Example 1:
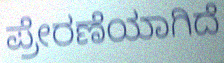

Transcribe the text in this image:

ಪ್ರೇರಣೆಯಾಗಿದೆ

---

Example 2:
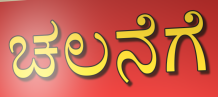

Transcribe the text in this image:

ಚಲನೆಗೆ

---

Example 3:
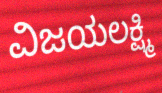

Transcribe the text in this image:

ವಿಜಯಲಕ್ಷ್ಮಿ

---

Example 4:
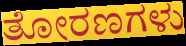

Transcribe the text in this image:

ತೋರಣಗಳು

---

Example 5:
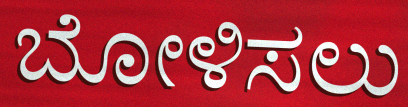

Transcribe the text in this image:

ಬೋಳಿಸಲು